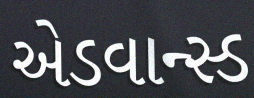
એડવાન્સ્ડ